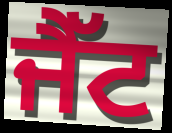
ਜੈੱਟ